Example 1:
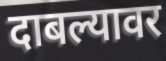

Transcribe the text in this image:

दाबल्यावर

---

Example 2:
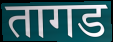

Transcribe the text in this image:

तागड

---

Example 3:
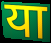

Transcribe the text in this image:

या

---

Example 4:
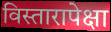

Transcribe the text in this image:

विस्तारापेक्षा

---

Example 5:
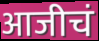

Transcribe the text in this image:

आजीचं